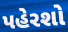
પહેરશો